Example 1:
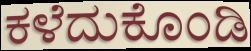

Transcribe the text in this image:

ಕಳೆದುಕೊಂಡಿ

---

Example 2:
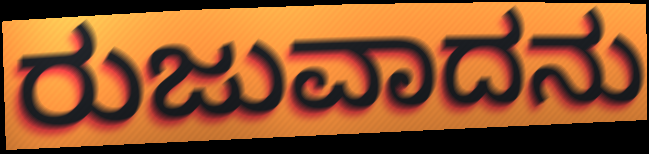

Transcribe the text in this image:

ರುಜುವಾದನು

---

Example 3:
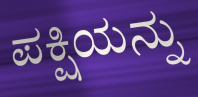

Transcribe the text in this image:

ಪಕ್ಷಿಯನ್ನು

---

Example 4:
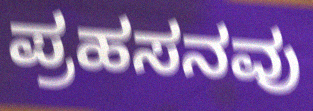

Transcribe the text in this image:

ಪ್ರಹಸನವು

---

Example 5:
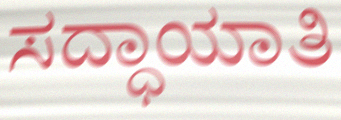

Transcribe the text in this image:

ಸದ್ಧಾಯಾತಿ